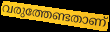
വരുത്തേണ്ടതാണ്